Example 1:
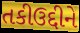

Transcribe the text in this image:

તકીઉદ્દીને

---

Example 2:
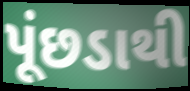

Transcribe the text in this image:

પૂંછડાથી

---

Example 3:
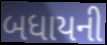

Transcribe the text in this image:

બધાયની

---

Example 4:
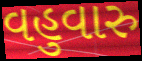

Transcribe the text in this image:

વહુવારુ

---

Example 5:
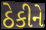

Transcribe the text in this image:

ઠેકીને